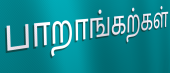
பாறாங்கற்கள்